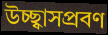
উচ্ছ্বাসপ্রবণ